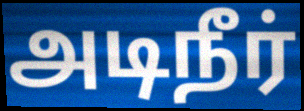
அடிநீர்